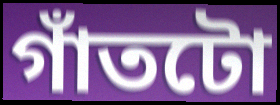
গাঁতটো